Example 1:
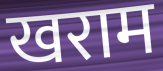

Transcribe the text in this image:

खराम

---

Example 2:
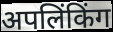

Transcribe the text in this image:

अपलिंकिंग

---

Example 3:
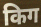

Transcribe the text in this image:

किग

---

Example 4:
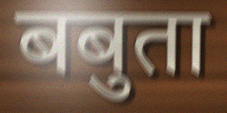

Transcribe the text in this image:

बबुता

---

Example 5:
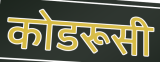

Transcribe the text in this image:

कोडरूसी